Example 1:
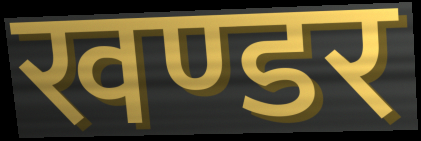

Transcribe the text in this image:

खण्डर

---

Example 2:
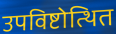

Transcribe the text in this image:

उपविष्टोत्थित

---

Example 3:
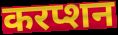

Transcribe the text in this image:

करप्शन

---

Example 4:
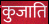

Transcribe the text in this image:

कुजाति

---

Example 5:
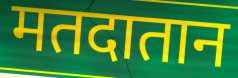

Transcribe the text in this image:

मतदातान